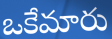
ఒకేమారు